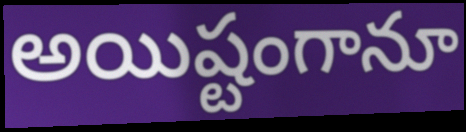
అయిష్టంగానూ